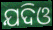
ଯଦିଓ